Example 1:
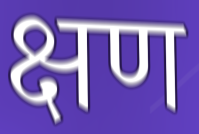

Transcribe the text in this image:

क्षण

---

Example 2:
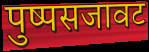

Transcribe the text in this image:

पुष्पसजावट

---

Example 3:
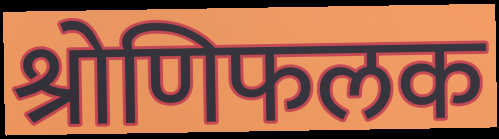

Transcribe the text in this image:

श्रोणिफलक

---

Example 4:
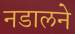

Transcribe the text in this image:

नडालने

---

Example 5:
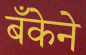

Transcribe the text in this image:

बँकेने